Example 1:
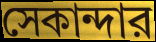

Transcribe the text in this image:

সেকান্দার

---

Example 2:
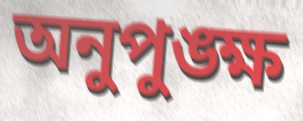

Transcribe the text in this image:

অনুপুঙ্ক্ষ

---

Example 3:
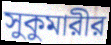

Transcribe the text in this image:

সুকুমারীর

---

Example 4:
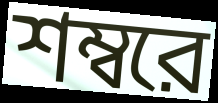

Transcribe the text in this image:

শম্বরে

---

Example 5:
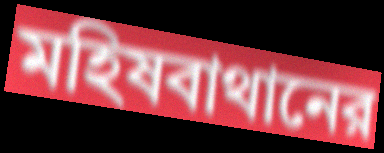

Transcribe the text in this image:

মহিষবাথানের